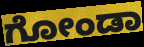
ಗೋಂಡಾ